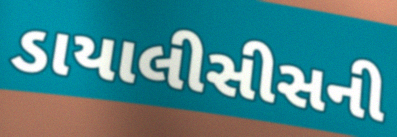
ડાયાલીસીસની